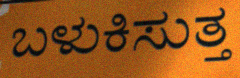
ಬಳುಕಿಸುತ್ತ